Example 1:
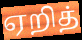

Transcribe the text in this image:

ஏறித்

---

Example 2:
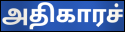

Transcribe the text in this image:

அதிகாரச்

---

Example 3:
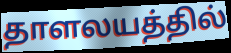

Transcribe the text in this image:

தாளலயத்தில்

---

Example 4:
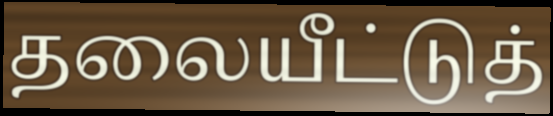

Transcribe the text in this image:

தலையீட்டுத்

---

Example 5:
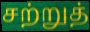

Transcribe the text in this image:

சற்றுத்